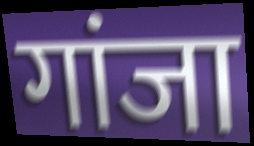
गांजा